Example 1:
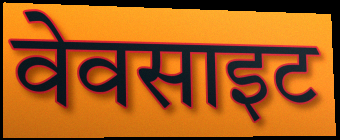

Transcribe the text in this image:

वेवसाइट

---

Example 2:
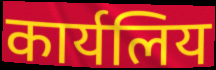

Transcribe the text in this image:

कार्यलिय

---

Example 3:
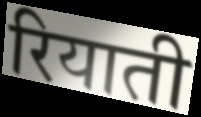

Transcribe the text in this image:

रियाती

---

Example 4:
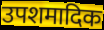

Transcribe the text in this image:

उपशमादिक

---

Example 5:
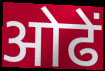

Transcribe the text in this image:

ओढें